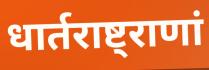
धार्तराष्ट्राणां